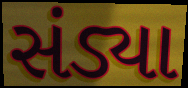
સંડ્યા